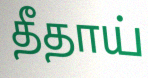
தீதாய்